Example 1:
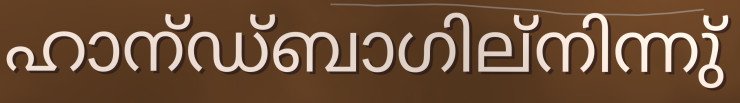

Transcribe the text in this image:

ഹാന്ഡ്ബാഗില്നിന്നു്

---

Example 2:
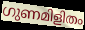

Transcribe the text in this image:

ഗുണമിളിതം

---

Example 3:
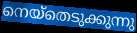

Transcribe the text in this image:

നെയ്തെടുക്കുന്നു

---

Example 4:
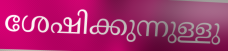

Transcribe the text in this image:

ശേഷിക്കുന്നുള്ളു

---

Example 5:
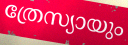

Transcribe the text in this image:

ത്രേസ്യായും